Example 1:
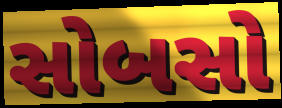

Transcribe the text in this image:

સોબસો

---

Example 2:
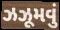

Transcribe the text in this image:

ઝઝૂમવું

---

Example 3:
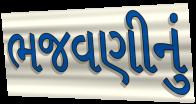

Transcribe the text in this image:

ભજવણીનું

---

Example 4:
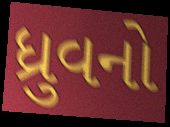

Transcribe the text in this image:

ધ્રુવનો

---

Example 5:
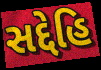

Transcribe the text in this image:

સદ્દેહિ